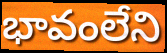
భావంలేని